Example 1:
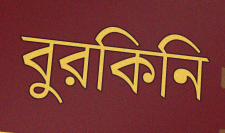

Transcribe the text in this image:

বুরকিনি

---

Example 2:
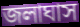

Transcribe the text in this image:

জলাঘাস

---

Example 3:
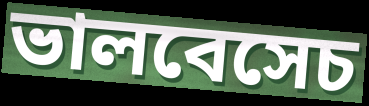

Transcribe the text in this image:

ভালবেসেচ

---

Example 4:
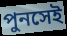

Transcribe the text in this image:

পুনসেই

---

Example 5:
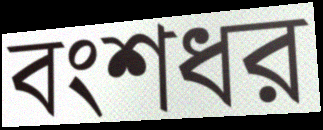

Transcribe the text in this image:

বংশধর